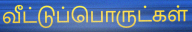
வீட்டுப்பொருட்கள்